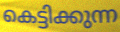
കെട്ടിക്കുന്ന